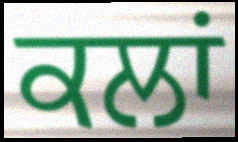
ਕਲਾਂ